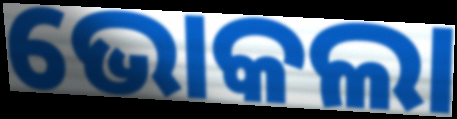
ଭୋକଲା